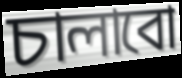
চালাবো